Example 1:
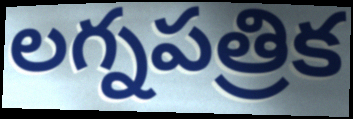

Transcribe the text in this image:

లగ్నపత్రిక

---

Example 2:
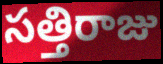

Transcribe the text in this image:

సత్తిరాజు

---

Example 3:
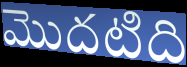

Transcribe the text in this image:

మొదటిది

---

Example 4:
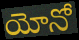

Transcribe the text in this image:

యోనో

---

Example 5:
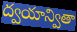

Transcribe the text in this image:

ద్వయాన్వితా